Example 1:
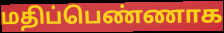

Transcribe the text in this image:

மதிப்பெண்ணாக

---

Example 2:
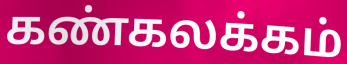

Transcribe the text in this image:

கண்கலக்கம்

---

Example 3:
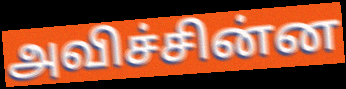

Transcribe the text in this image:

அவிச்சின்ன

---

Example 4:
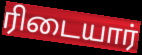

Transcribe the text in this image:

ரிடையார்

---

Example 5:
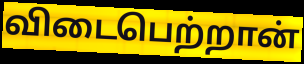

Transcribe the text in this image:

விடைபெற்றான்